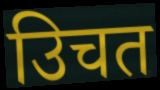
उिचत